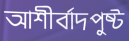
আশীর্বাদপুষ্ট